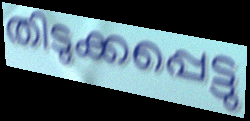
തിടുക്കപ്പെട്ടു